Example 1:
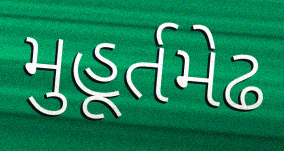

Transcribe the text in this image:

મુહૂર્તમેઢ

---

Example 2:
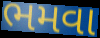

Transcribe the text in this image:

ભમવા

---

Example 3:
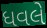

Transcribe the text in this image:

ધવલે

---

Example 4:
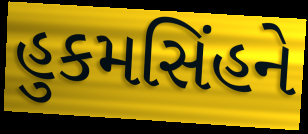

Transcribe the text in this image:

હુકમસિંહને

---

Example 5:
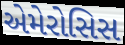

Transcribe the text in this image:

એમેરોસિસ